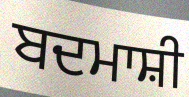
ਬਦਮਾਸ਼ੀ